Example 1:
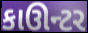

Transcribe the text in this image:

કાઊન્ટર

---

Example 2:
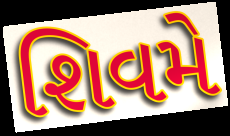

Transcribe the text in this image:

શિવમે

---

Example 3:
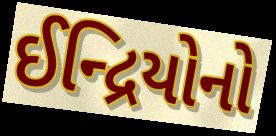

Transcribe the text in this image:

ઈન્દ્રિયોનો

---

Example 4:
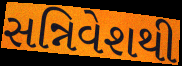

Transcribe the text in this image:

સન્નિવેશથી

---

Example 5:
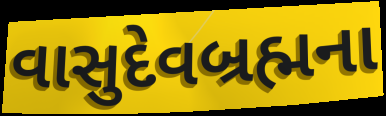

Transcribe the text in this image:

વાસુદેવબ્રહ્મના